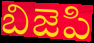
బిజెపి